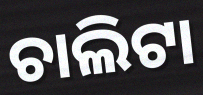
ଚାଲିଟା